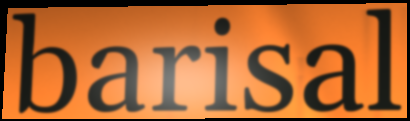
barisal